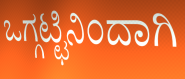
ಒಗ್ಗಟ್ಟಿನಿಂದಾಗಿ